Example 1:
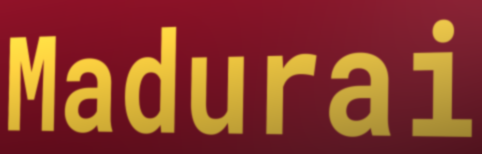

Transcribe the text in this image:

Madurai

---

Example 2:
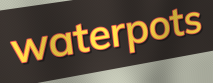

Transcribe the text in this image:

waterpots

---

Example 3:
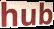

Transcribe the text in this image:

hub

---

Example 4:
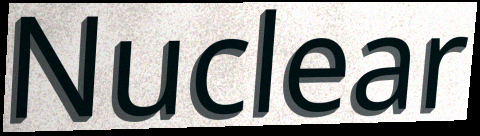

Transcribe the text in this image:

Nuclear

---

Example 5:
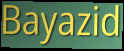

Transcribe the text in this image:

Bayazid